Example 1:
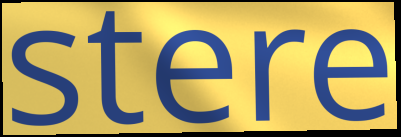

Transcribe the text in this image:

stere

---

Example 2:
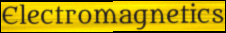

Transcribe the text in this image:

Electromagnetics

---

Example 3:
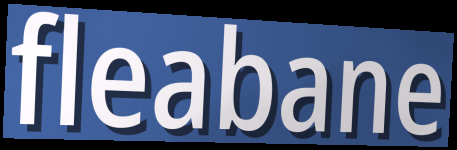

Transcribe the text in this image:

fleabane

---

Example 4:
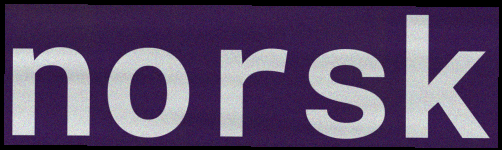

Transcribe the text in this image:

norsk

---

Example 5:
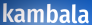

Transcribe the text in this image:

kambala